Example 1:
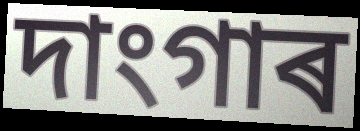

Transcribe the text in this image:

দাংগাৰ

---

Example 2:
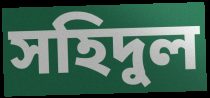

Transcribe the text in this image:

সহিদুল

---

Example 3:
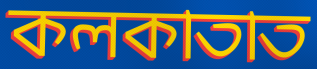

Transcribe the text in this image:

কলকাতাত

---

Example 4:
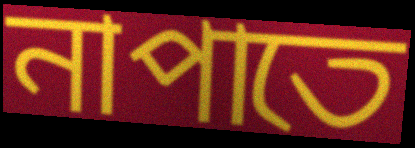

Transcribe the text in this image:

নাপাতে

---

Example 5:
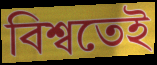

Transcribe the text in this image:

বিশ্বতেই